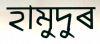
হামুদুৰ